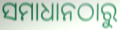
ସମାଧାନଠାରୁ